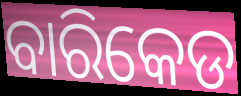
ବାରିକେଡ